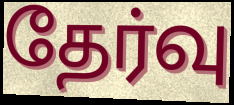
தேர்வு